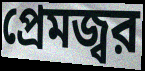
প্রেমজ্বর